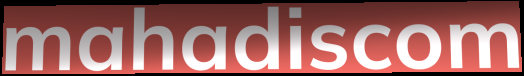
mahadiscom